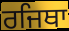
ਰਜਿਥਾ